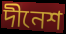
দীনেশ